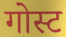
गोस्ट